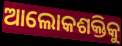
ଆଲୋକଶକ୍ତିକୁ